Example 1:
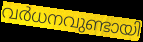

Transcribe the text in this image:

വർധനവുണ്ടായി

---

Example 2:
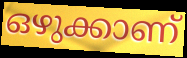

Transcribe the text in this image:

ഒഴുക്കാണ്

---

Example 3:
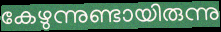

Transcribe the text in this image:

കേഴുന്നുണ്ടായിരുന്നു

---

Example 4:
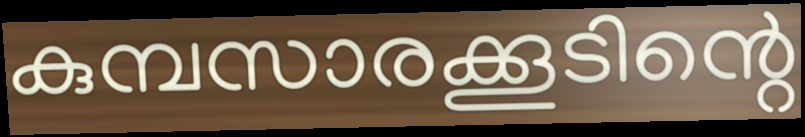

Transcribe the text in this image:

കുമ്പസാരക്കൂടിന്റെ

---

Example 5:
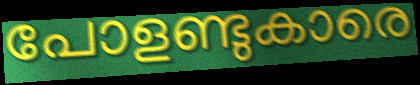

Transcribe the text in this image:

പോളണ്ടുകാരെ